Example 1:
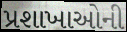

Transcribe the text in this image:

પ્રશાખાઓની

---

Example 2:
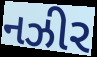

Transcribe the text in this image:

નઝીર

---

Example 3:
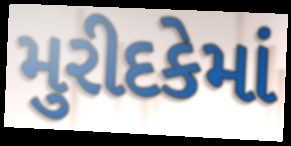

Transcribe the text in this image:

મુરીદકેમાં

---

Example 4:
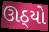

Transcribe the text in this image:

ઊઠ્યો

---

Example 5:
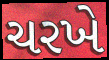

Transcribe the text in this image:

ચરખે